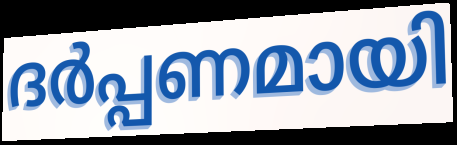
ദർപ്പണമായി